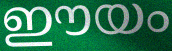
ഈയം